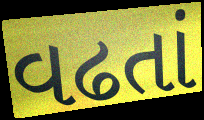
વઢતાં